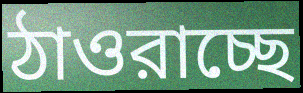
ঠাওরাচ্ছে